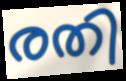
രതി